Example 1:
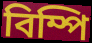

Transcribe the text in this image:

বিম্পি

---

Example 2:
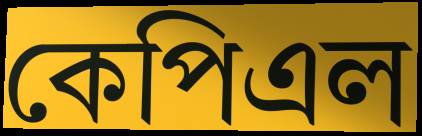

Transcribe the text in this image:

কেপিএল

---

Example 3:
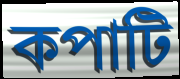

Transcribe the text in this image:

কপাটি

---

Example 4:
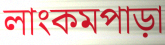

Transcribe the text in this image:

লাংকমপাড়া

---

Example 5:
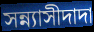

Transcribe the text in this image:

সন্ন্যাসীদাদা